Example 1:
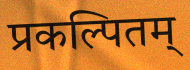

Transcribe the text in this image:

प्रकल्पितम्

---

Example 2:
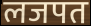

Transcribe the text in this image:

लजपत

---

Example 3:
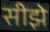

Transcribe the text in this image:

सीझे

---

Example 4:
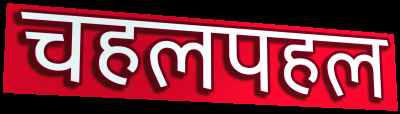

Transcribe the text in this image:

चहलपहल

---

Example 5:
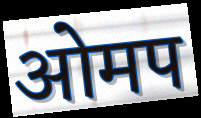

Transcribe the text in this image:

ओमप